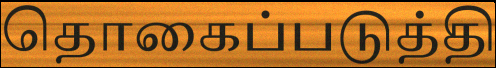
தொகைப்படுத்தி